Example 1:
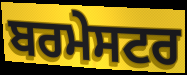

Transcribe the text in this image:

ਬਰਮੇਸਟਰ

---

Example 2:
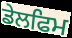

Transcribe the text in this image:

ਡੇਲਫਿਮ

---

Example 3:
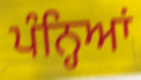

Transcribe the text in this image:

ਪੰਨ੍ਹਿਆਂ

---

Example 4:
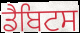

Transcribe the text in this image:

ਡੈਬਿਟਸ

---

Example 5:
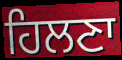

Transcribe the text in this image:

ਹਿਲਣਾ